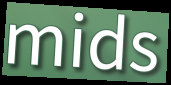
mids